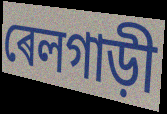
ৰেলগাড়ী